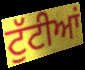
ਟੁੱਟੀਆਂ